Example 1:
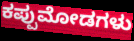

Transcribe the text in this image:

ಕಪ್ಪುಮೋಡಗಳು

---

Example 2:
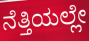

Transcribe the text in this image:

ನೆತ್ತಿಯಲ್ಲೇ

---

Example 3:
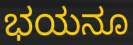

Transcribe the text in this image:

ಭಯನೂ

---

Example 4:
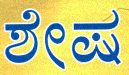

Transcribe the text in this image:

ಶೇಷ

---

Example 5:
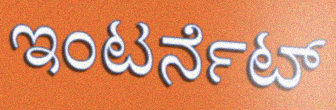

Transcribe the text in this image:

ಇಂಟರ್ನೆಟ್